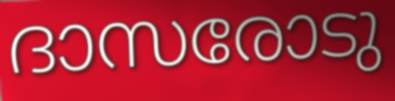
ദാസരോടു